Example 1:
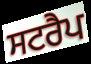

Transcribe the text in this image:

ਸਟਰੈਪ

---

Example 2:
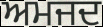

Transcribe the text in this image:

ਅਮਜਦ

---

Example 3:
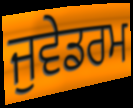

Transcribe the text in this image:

ਜੁਵੇਡਰਮ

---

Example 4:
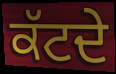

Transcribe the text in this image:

ਕੱਟਦੇ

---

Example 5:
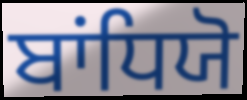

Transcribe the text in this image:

ਬਾਂਧਿਯੋ